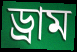
ড্ৰাম